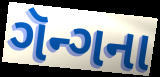
ગૅન્ગના